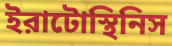
ইরাটোস্থিনিস